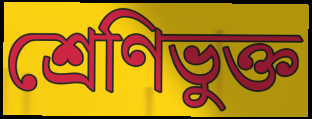
শ্রেণিভুক্ত